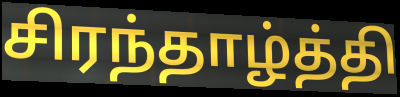
சிரந்தாழ்த்தி